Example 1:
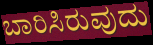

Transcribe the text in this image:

ಬಾರಿಸಿರುವುದು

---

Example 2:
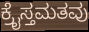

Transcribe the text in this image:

ಕ್ರೈಸ್ತಮತವು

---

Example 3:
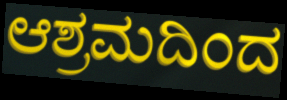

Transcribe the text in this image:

ಆಶ್ರಮದಿಂದ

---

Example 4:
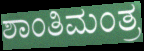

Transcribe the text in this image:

ಶಾಂತಿಮಂತ್ರ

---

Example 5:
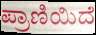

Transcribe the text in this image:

ಪ್ರಾಣಿಯಿದೆ